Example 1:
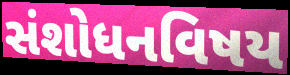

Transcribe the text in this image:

સંશોધનવિષય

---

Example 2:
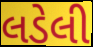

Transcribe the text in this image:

લડેલી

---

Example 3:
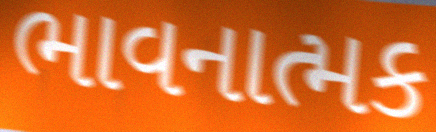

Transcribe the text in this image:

ભાવનાત્મક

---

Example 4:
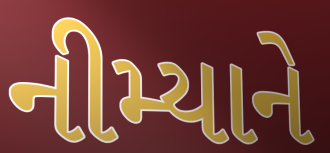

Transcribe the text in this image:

નીમ્યાને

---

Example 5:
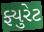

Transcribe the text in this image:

ફ્યુરેટ